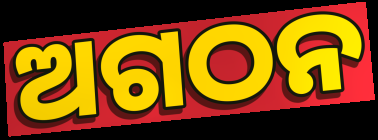
ଅଗଠନ